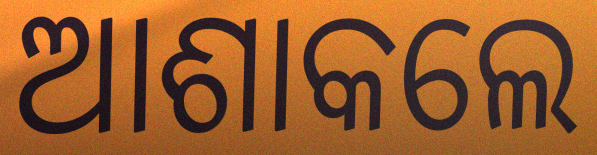
ଆଶାକଲେ